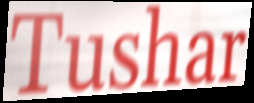
Tushar